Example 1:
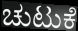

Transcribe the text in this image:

ಚುಟುಕೆ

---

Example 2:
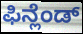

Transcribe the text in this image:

ಫಿನ್ಲೆಂಡ್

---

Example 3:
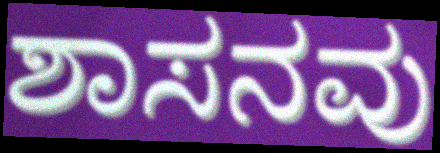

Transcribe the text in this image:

ಶಾಸನವು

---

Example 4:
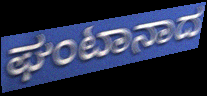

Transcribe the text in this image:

ಘಂಟಾನಾದ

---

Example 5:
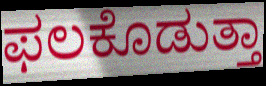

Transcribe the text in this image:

ಫಲಕೊಡುತ್ತಾ